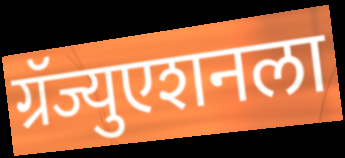
ग्रॅज्युएशनला